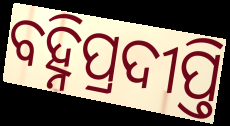
ବହ୍ନିପ୍ରଦୀପ୍ତି